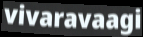
vivaravaagi